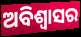
ଅବିଶ୍ବାସର